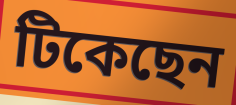
টিকেছেন